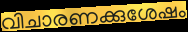
വിചാരണക്കുശേഷം